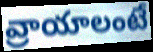
వ్రాయాలంటే